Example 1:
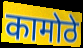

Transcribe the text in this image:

कामोठे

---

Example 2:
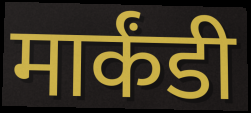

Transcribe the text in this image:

मार्कंडी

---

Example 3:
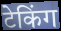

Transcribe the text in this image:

टेकिंग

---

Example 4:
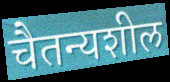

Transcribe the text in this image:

चैतन्यशील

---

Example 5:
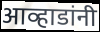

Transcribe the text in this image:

आव्हाडांनी